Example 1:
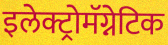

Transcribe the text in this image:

इलेक्ट्रोमॅग्नेटिक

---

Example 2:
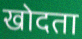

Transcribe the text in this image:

खोदता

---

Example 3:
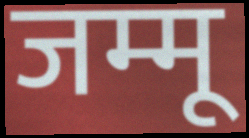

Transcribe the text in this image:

जम्मू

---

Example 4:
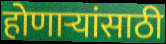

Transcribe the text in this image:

होणाऱ्यांसाठी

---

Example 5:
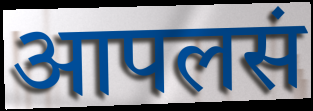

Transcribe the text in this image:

आपलसं